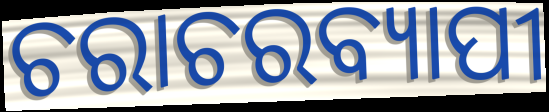
ଚରାଚରବ୍ୟାପୀ